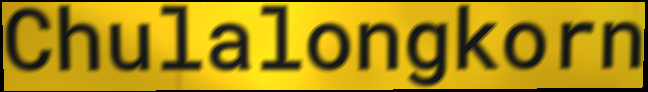
Chulalongkorn